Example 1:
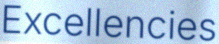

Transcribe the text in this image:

Excellencies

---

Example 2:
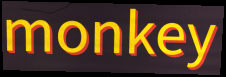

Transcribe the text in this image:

monkey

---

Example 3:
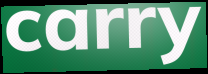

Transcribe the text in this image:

carry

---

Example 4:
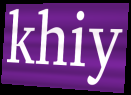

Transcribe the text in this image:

khiy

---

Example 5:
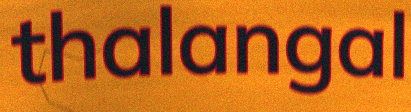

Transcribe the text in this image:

thalangal